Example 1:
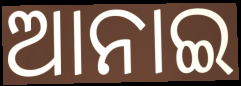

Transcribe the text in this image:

ଆନାଇ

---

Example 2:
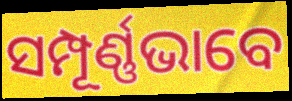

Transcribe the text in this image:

ସମ୍ପୂର୍ଣ୍ଣଭାବେ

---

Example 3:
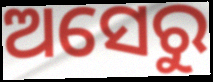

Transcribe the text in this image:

ଅସେରୁ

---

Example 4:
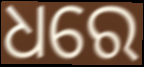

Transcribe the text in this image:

ଧରେ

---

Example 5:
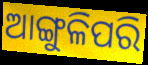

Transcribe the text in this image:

ଆଙ୍ଗୁଳିପରି